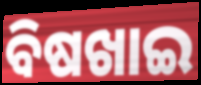
ବିଷଖାଇ